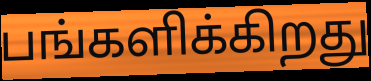
பங்களிக்கிறது